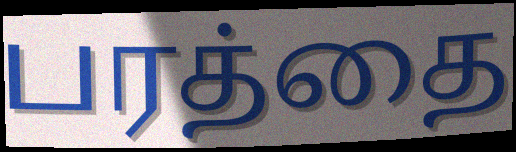
பரத்தை